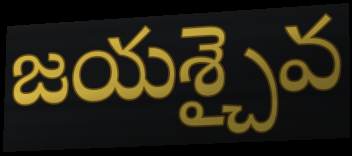
జయశ్చైవ